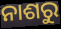
ନାଶରୁ